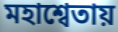
মহাশ্বেতায়